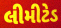
લીમીટેડ